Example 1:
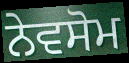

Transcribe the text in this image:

ਨੇਵਸੋਮ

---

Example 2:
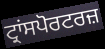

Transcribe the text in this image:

ਟ੍ਰਾਂਸਪੋਰਟਰਜ਼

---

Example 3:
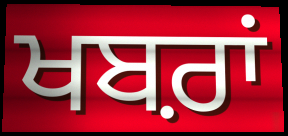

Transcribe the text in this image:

ਖਬ਼ਰਾਂ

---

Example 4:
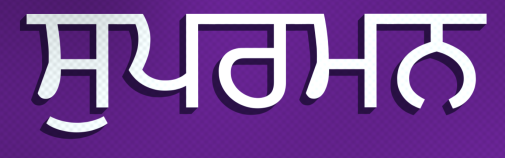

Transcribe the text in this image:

ਸੁਪਰਮਨ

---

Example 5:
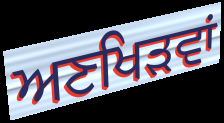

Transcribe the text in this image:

ਅਣਖਿੜਵਾਂ